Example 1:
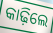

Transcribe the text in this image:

କାଢ଼ିଲେ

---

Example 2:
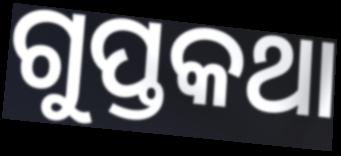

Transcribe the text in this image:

ଗୁପ୍ତକଥା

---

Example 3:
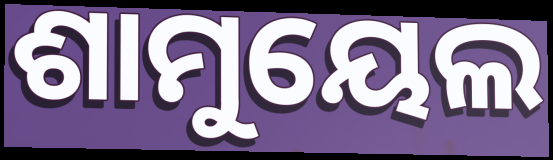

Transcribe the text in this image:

ଶାମୁୟେଲ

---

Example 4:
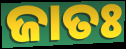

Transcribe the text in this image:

ଜାତଃ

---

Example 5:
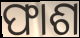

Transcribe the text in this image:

ଫାଶ